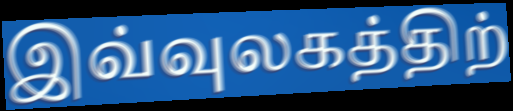
இவ்வுலகத்திற்